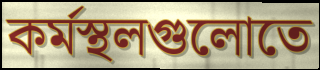
কর্মস্থলগুলোতে